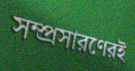
সম্প্রসারণেরই